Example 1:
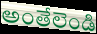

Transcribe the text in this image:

అంతేలెండి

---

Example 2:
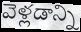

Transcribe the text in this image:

వెళ్లడాన్ని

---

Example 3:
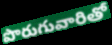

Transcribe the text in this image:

పొరుగువారితో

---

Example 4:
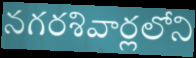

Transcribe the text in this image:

నగరశివార్లలోని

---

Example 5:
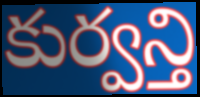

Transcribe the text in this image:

కుర్వన్తి